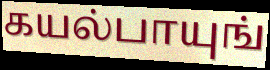
கயல்பாயுங்